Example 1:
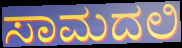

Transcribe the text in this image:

ಸಾಮದಲಿ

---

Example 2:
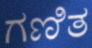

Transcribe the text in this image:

ಗಣಿತ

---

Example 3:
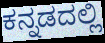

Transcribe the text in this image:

ಕನ್ನಡದಲ್ಲಿ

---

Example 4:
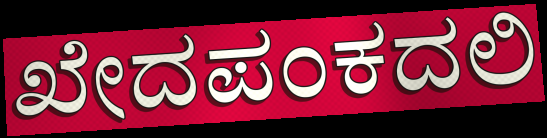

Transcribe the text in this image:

ಖೇದಪಂಕದಲಿ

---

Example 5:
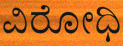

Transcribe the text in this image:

ವಿರೋಧಿ